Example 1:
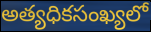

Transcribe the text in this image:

అత్యధికసంఖ్యలో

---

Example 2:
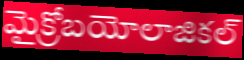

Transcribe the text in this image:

మైక్రోబయోలాజికల్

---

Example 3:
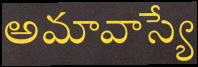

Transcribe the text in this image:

అమావాస్యే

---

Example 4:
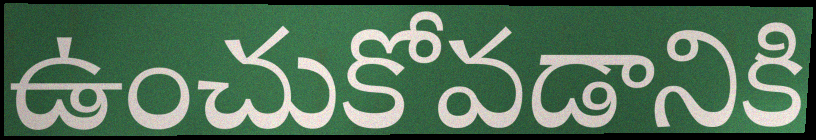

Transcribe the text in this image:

ఉంచుకోవడానికి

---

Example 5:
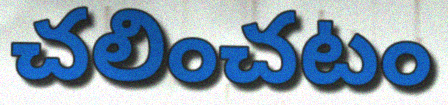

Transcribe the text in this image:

చలించటం